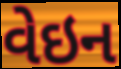
વેઇન